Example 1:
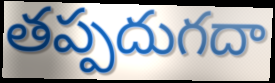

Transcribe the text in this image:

తప్పదుగదా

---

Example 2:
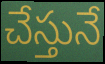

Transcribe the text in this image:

చేస్తునే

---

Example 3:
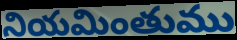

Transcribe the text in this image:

నియమింతుము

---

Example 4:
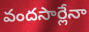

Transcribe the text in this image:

వందసార్లేనా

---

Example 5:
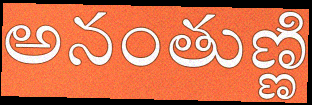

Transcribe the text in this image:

అనంతుణ్ణి